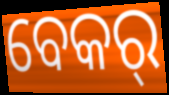
ବେକର୍